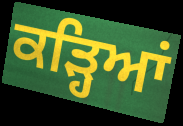
ਕੜ੍ਹਿਆਂ